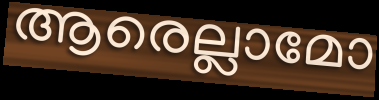
ആരെല്ലാമോ